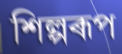
শিল্পৰূপ